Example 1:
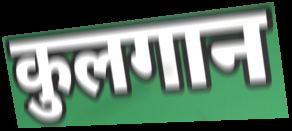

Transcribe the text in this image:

कुलगान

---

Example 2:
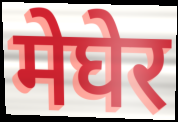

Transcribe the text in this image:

मेघेर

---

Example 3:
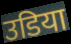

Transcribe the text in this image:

उडिया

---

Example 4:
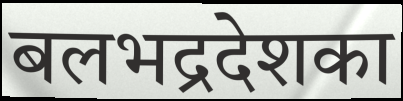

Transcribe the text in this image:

बलभद्रदेशका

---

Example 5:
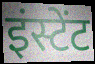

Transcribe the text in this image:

इंस्टेंट